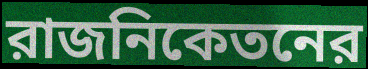
রাজনিকেতনের